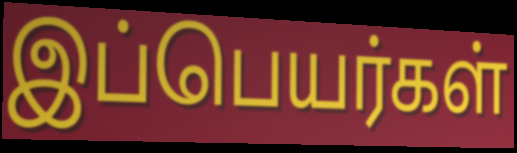
இப்பெயர்கள்